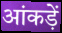
आंकड़ें